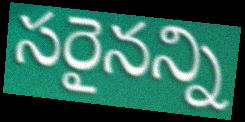
సరైనన్ని